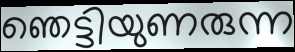
ഞെട്ടിയുണരുന്ന